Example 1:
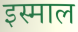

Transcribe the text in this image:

इस्माल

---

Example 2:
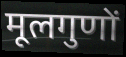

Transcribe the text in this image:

मूलगुणों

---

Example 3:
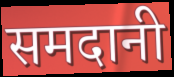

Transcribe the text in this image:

समदानी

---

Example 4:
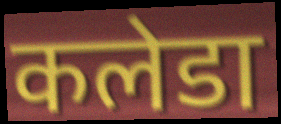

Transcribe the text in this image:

कलेडा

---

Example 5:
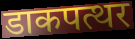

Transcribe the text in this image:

डाकपत्थर